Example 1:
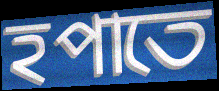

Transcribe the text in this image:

হপাতে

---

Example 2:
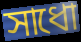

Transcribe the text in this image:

সাধো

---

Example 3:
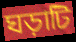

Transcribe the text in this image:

ঘড়াটি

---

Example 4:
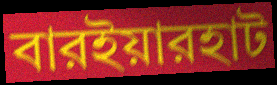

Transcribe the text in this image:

বারইয়ারহাট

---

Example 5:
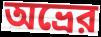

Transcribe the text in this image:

অভ্রের